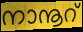
നാനൂറ്